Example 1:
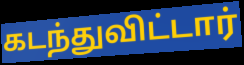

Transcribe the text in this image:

கடந்துவிட்டார்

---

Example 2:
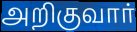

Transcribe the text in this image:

அறிகுவார்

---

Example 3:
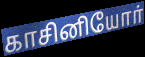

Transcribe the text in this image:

காசினியோர்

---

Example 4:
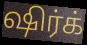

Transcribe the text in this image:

ஷிர்க்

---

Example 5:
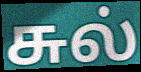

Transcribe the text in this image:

சுல்